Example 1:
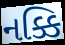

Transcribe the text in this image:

નક્કિ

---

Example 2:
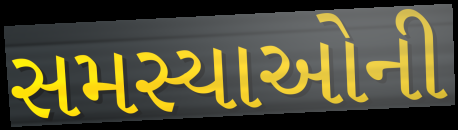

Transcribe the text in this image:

સમસ્યાઓની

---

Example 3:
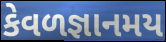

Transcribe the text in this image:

કેવળજ્ઞાનમય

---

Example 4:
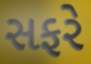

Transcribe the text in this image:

સફરે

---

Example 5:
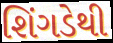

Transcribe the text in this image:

શિંગડેથી